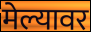
मेल्यावर